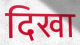
दिखा